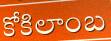
కోకిలాంబ